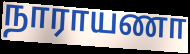
நாராயணா